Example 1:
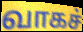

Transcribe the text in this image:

வாகச்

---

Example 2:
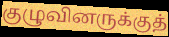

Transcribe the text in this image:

குழுவினருக்குத்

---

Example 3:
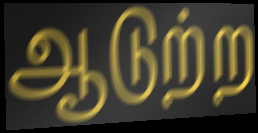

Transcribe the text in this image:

ஆடுற்ற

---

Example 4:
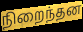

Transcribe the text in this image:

நிறைந்தன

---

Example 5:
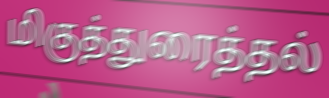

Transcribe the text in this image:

மிகுத்துரைத்தல்